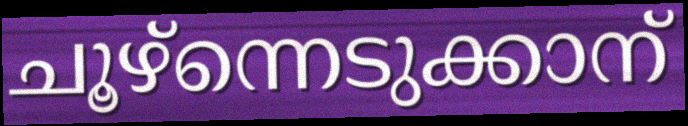
ചൂഴ്ന്നെടുക്കാന്